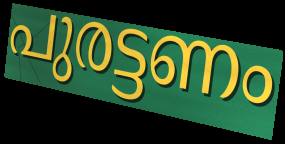
പുരട്ടണം